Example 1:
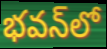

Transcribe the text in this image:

భవన్‌లో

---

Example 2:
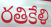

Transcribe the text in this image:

రతికేళి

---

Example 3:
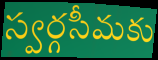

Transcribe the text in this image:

స్వర్గసీమకు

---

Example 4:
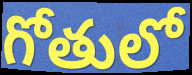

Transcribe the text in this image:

గోతులో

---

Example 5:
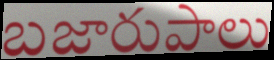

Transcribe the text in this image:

బజారుపాలు